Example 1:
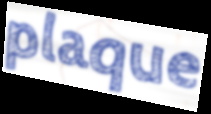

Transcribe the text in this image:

plaque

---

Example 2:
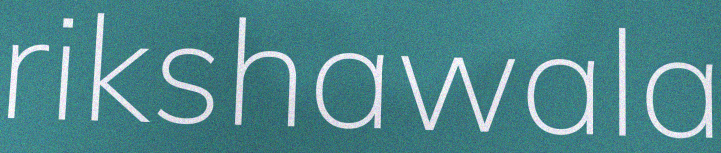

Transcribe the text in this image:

rikshawala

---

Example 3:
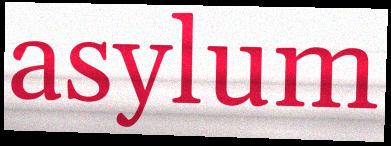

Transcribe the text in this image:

asylum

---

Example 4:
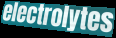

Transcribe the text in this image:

electrolytes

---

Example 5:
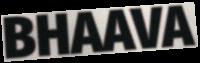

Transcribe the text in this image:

BHAAVA